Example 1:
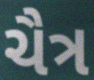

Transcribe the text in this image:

ચૈત્ર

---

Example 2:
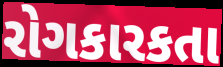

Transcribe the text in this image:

રોગકારકતા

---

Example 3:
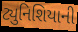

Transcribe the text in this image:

ટ્યુનિશિયાની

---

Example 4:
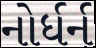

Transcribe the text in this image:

નોર્ધર્ન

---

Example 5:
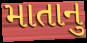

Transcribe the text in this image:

માતાનુ